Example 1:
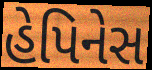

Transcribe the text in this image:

હેપિનેસ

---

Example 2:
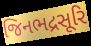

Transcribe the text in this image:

જિનભદ્રસૂરિ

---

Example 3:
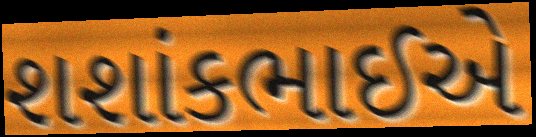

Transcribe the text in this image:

શશાંકભાઈએ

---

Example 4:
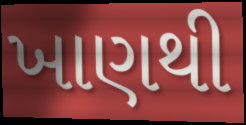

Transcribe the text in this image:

ખાણથી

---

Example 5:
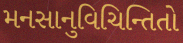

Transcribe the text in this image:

મનસાનુવિચિન્તિતો